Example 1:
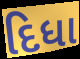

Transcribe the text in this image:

દિધા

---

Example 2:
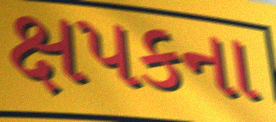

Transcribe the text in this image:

ક્ષપકના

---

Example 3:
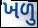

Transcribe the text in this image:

ખળુ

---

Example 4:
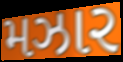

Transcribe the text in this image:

મઝાર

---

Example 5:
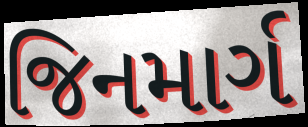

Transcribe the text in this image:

જિનમાર્ગ